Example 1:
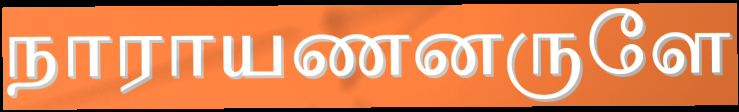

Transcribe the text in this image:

நாராயணனருளே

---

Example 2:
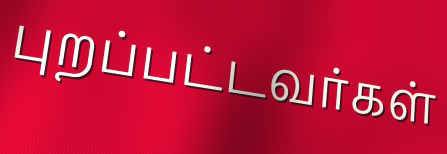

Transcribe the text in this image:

புறப்பட்டவர்கள்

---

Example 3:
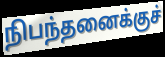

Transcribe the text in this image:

நிபந்தனைக்குச்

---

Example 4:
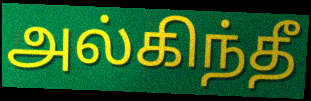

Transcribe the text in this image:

அல்கிந்தீ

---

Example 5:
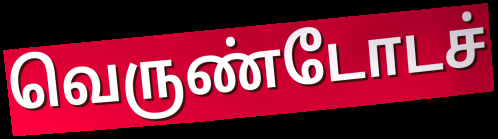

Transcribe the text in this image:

வெருண்டோடச்